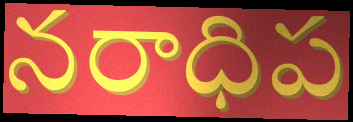
నరాధిప